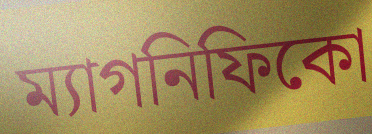
ম্যাগনিফিকো